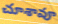
చూశావూ